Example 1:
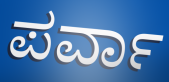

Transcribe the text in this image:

ಪರ್ವಾ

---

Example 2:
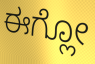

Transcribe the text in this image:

ಈಗ್ಲೋ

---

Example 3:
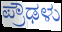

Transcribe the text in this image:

ಪ್ರೌಢಳು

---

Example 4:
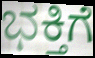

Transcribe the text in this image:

ಭಕ್ತಿಗೆ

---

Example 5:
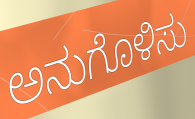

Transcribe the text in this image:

ಅನುಗೊಳಿಸು